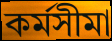
কর্মসীমা